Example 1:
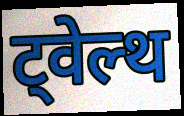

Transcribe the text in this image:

ट्वेल्थ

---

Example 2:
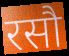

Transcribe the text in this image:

रसौ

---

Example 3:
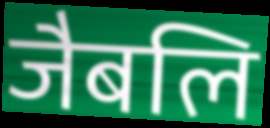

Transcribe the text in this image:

जैबलि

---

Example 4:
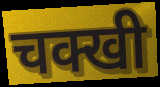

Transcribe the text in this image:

चक्खी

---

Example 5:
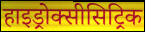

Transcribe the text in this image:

हाइड्रोक्सीसिट्रिक